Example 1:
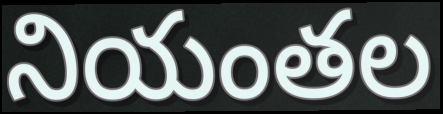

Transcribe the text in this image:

నియంతల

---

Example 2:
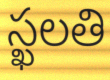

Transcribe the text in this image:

స్ఖలతి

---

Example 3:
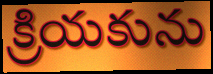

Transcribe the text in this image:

క్రియకును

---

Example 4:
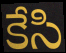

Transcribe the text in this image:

కేసి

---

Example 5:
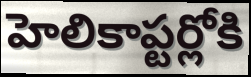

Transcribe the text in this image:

హెలికాప్టర్లోకి